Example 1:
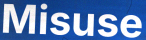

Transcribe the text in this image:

Misuse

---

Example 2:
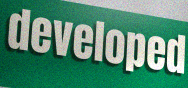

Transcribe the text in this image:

developed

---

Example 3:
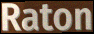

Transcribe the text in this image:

Raton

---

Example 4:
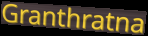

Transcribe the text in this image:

Granthratna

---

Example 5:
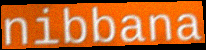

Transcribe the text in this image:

nibbana